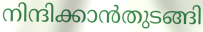
നിന്ദിക്കാൻതുടങ്ങി